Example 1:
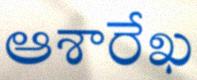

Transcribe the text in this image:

ఆశారేఖ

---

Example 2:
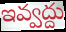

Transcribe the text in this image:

ఇవ్వద్దు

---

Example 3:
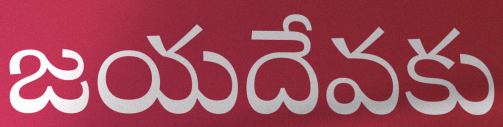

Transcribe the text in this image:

జయదేవకు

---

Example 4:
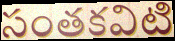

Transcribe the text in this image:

సంతకవిటి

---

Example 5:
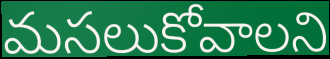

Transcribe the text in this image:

మసలుకోవాలని